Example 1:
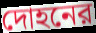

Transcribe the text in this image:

দোহনের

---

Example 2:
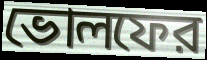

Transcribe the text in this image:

ভোলফের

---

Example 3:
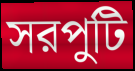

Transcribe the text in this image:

সরপুটি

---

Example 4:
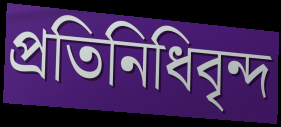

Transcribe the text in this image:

প্রতিনিধিবৃন্দ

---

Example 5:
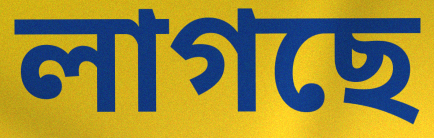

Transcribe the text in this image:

লাগছে